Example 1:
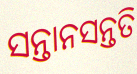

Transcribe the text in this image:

ସନ୍ତାନସନ୍ତତି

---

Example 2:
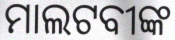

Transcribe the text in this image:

ମାଲଟବୀଙ୍କ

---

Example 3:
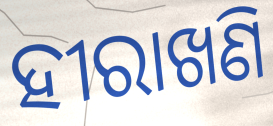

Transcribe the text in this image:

ହୀରାଖଣି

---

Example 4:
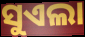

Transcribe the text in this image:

ସୁଏଲା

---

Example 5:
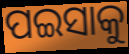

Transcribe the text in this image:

ପଇସାକୁ